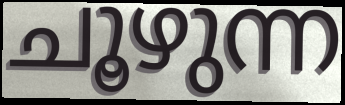
ചൂഴുന്ന